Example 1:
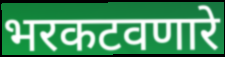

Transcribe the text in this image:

भरकटवणारे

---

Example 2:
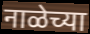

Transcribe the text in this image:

नाळेच्या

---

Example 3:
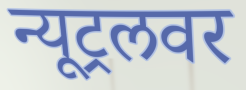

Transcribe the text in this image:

न्यूट्रलवर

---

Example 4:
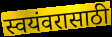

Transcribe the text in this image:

स्वयंवरासाठी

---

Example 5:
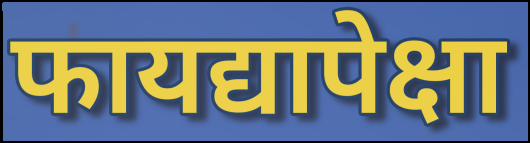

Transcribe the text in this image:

फायद्यापेक्षा